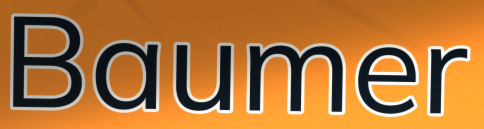
Baumer